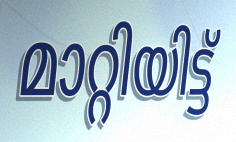
മാറ്റിയിട്ട്